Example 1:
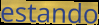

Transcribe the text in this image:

estando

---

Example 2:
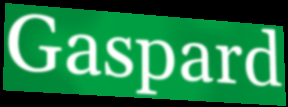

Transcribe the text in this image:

Gaspard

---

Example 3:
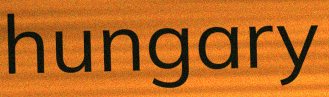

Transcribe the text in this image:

hungary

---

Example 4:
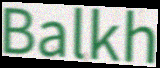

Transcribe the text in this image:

Balkh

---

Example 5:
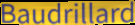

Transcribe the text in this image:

Baudrillard